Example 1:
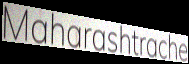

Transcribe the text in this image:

Maharashtrache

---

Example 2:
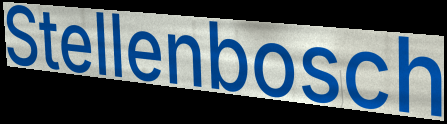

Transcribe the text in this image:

Stellenbosch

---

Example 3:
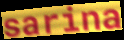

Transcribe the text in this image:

sarina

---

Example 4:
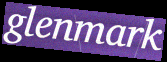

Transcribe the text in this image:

glenmark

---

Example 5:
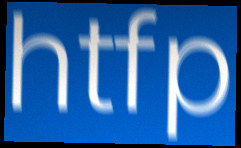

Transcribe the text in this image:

htfp